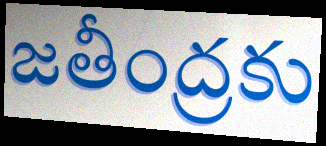
జతీంద్రకు